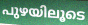
പുഴയിലൂടെ